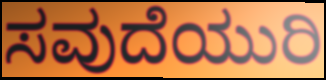
ಸವುದೆಯುರಿ